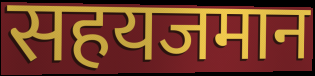
सहयजमान